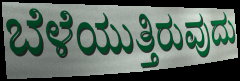
ಬೆಳೆಯುತ್ತಿರುವುದು